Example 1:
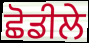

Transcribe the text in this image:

ਛੋਡੀਲੇ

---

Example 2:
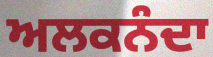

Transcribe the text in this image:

ਅਲਕਨੰਦਾ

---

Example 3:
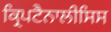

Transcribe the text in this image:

ਕ੍ਰਿਪਟੈਨਾਲੀਸਿਸ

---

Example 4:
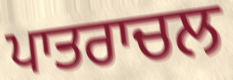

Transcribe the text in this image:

ਪਾਤਰਾਚਲ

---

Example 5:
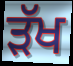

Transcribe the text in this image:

ੜੱਖ